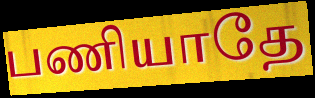
பணியாதே